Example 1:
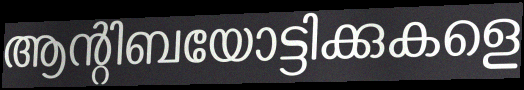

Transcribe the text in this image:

ആന്റിബയോട്ടിക്കുകളെ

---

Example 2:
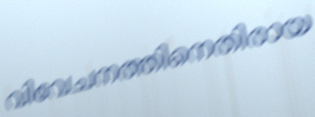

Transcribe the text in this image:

വിവേചനത്തിനെതിരായ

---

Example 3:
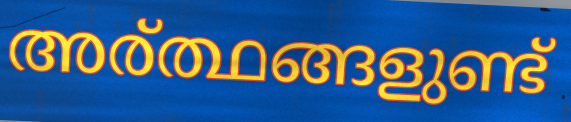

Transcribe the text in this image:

അര്ത്ഥങ്ങളുണ്ട്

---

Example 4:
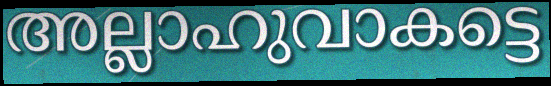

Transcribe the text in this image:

അല്ലാഹുവാകട്ടെ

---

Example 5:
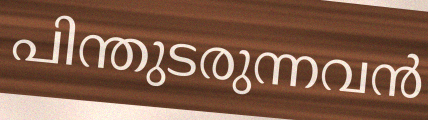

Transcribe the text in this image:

പിന്തുടരുന്നവൻ